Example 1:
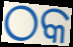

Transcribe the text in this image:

ଠକ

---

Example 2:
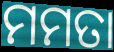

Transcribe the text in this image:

ମମତା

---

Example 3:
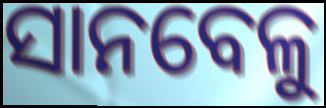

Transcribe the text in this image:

ସାନବେଳୁ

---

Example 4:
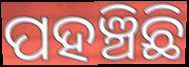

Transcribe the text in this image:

ପହଞ୍ଚିଛି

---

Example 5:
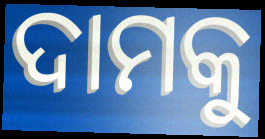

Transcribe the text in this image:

ଦାମକୁ